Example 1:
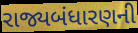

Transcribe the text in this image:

રાજ્યબંધારણની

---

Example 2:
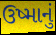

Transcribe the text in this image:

ઉષ્માનું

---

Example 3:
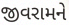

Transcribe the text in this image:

જીવરામને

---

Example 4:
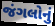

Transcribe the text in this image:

જંગલોનું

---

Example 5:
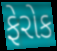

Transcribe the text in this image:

ફેરોક